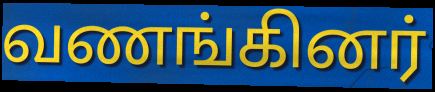
வணங்கினர்